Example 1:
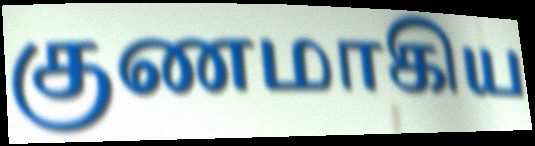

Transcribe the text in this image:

குணமாகிய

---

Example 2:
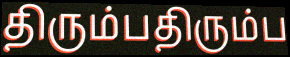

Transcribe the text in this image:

திரும்பதிரும்ப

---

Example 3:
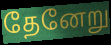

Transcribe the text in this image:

தேனேறு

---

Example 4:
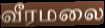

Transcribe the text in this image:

வீரமலை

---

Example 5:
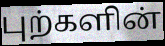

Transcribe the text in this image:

புற்களின்